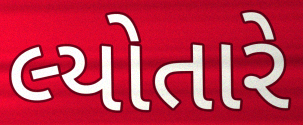
લ્યોતારે